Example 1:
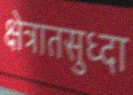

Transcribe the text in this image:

क्षेत्रातसुध्दा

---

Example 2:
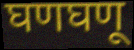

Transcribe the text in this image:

घणघणू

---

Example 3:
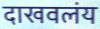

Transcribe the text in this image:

दाखवलंय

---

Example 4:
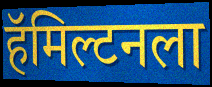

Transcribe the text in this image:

हॅमिल्टनला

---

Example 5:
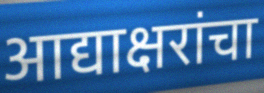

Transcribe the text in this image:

आद्याक्षरांचा